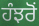
ਹੰਝਰੋਂ